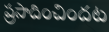
ప్రసాదించిందట